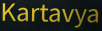
Kartavya